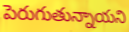
పెరుగుతున్నాయని